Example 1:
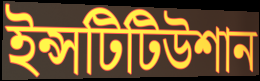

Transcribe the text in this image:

ইন্সটিটিউশান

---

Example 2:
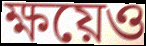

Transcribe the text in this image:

ক্ষয়েও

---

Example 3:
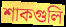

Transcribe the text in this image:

শাকগুলি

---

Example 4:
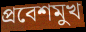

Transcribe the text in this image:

প্রবেশমুখ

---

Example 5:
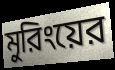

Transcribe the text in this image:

মুরিংয়ের